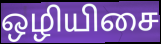
ஒழியிசை